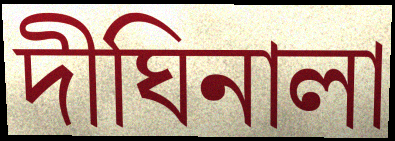
দীঘিনালা